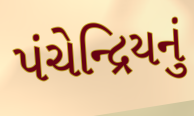
પંચેન્દ્રિયનું